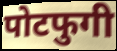
पोटफुगी